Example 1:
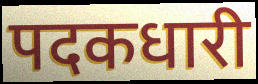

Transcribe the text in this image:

पदकधारी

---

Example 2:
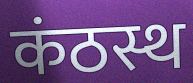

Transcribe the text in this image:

कंठस्थ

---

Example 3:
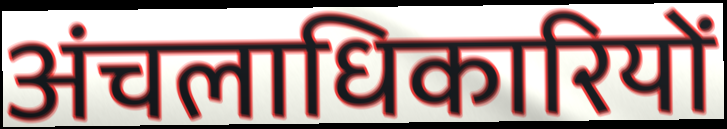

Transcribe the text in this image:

अंचलाधिकारियों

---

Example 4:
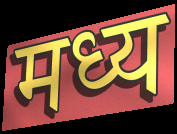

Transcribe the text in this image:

मध्य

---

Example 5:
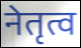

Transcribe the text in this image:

नेतृत्‍व